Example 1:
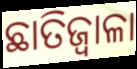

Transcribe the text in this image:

ଛାତିଜ୍ୱାଳା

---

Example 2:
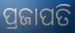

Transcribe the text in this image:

ପ୍ରଜାପତି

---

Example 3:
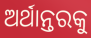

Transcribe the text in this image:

ଅର୍ଥାନ୍ତରକୁ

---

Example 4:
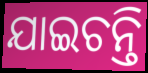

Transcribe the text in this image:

ଯାଇଚନ୍ତି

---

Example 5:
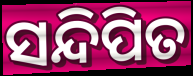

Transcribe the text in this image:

ସନ୍ଦିପିତ